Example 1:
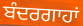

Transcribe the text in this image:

ਬੰਦਰਗਾਹਾਂ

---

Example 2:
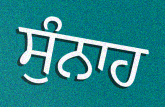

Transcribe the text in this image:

ਸੁੰਨਾਹ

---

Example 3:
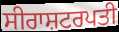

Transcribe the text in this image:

ਸੀਰਾਸ਼ਟਰਪਤੀ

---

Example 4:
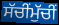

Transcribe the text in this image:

ਸੱਚੀਂਮੁੱਚੀਂ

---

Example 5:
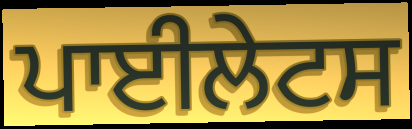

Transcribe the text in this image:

ਪਾਈਲੇਟਸ